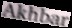
Akhbar